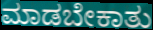
ಮಾಡಬೇಕಾತು